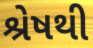
શ્રેષથી